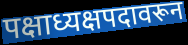
पक्षाध्यक्षपदावरून